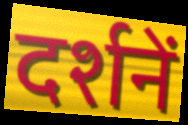
दर्शनें